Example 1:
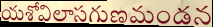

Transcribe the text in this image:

యశోవిలాసగుణమండన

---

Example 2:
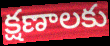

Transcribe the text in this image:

క్షణాలకు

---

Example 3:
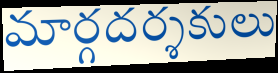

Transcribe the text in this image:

మార్గదర్శకులు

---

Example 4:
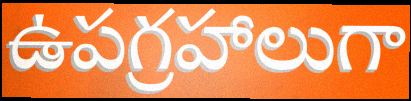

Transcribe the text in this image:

ఉపగ్రహాలుగా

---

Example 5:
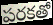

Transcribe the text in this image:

పరకతో